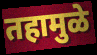
तहामुळे